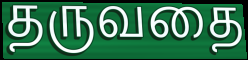
தருவதை